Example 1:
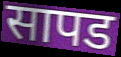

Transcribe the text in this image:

सापड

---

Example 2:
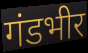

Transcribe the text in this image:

गंडभीर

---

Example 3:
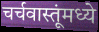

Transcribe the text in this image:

चर्चवास्तूंमध्ये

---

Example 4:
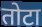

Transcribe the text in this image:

तोटा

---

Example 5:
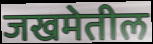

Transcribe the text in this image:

जखमेतील